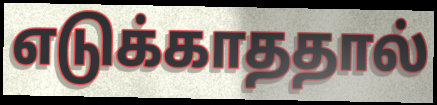
எடுக்காததால்